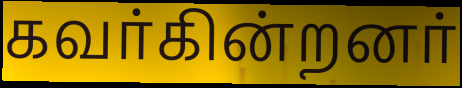
கவர்கின்றனர்